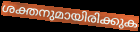
ശക്തനുമായിരിക്കുക